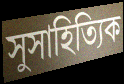
সুসাহিত্যিক